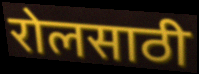
रोलसाठी